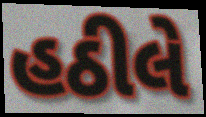
હઠીલે